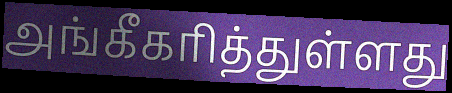
அங்கீகரித்துள்ளது